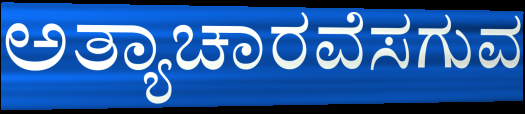
ಅತ್ಯಾಚಾರವೆಸಗುವ